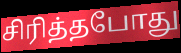
சிரித்தபோது